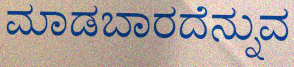
ಮಾಡಬಾರದೆನ್ನುವ